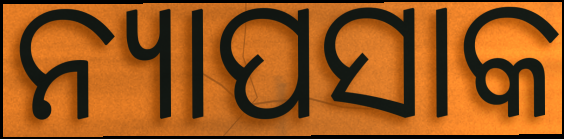
ନ୍ୟାପସାକ